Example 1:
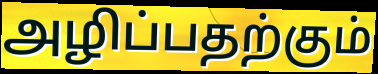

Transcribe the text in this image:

அழிப்பதற்கும்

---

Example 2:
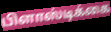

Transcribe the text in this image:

பிளாஸ்டிக்கை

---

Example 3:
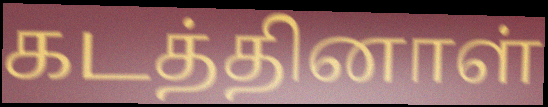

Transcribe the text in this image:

கடத்தினாள்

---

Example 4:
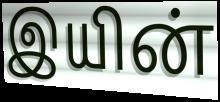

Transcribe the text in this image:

இயின்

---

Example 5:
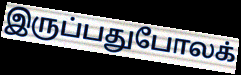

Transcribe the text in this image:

இருப்பதுபோலக்